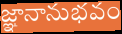
జ్ఞానానుభవం